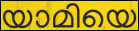
യാമിയെ